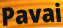
Pavai